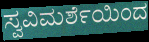
ಸ್ವವಿಮರ್ಶೆಯಿಂದ